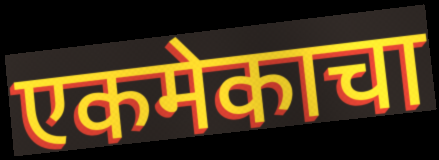
एकमेकाचा